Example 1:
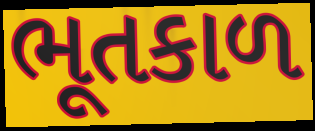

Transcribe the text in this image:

ભૂતકાળ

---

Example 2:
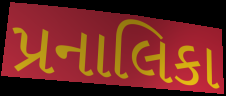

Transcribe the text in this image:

પ્રનાલિકા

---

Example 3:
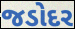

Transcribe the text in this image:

જડોદર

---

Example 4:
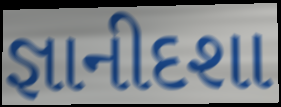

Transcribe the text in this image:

જ્ઞાનીદશા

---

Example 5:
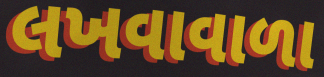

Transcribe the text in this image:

લખવાવાળા